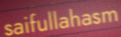
saifullahasm